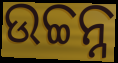
ଉଚ୍ଚନ୍ନ